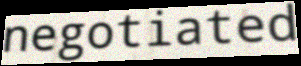
negotiated